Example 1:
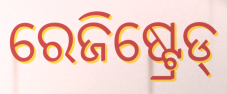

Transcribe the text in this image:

ରେଜିଷ୍ଟ୍ରେଡ୍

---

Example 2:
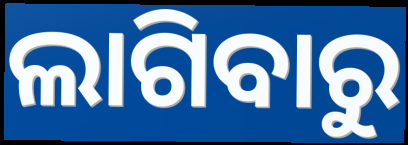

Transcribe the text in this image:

ଲାଗିବାରୁ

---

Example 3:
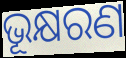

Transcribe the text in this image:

ଭୂକ୍ଷରଣ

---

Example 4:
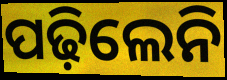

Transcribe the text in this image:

ପଢ଼ିଲେନି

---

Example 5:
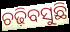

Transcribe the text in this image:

ଚଢ଼ିବସୁଛି